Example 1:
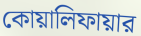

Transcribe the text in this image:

কোয়ালিফায়ার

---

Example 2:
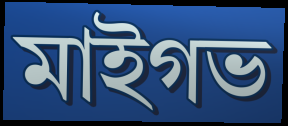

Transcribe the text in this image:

মাইগভ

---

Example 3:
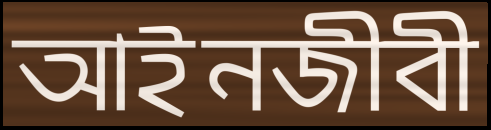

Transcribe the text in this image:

আইনজীবী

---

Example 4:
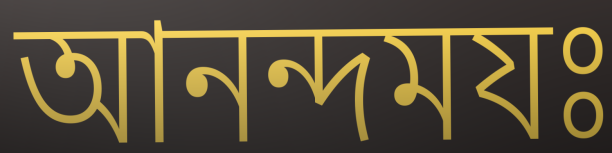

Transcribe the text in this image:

আনন্দমযঃ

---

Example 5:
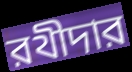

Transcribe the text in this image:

রথীদার